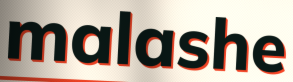
malashe